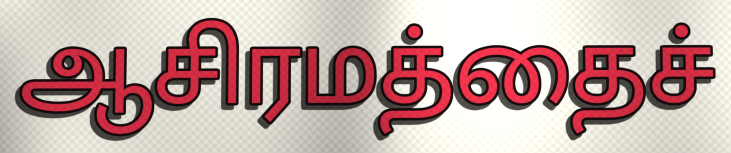
ஆசிரமத்தைச்